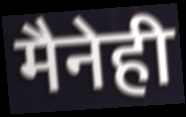
मैनेही